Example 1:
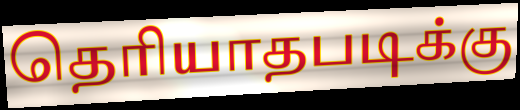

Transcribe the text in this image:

தெரியாதபடிக்கு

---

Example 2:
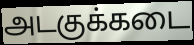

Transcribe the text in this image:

அடகுக்கடை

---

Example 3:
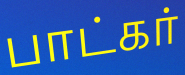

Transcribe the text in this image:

பாட்கர்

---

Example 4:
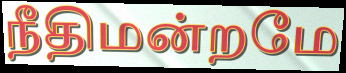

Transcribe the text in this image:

நீதிமன்றமே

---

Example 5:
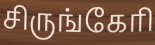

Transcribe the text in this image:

சிருங்கேரி